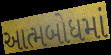
આત્મબોધમાં